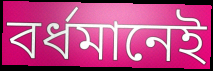
বর্ধমানেই